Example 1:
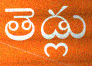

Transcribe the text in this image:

తెడ్లు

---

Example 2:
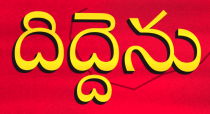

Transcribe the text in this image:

దిద్దెను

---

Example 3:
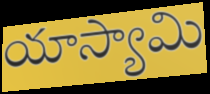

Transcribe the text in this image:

యాస్యామి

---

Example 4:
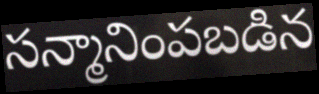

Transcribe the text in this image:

సన్మానింపబడిన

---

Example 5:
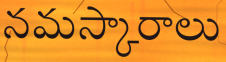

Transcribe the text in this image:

నమస్కారాలు